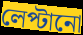
লেপ্টানো